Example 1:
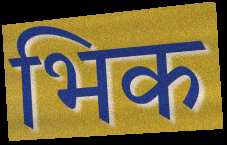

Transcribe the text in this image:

भिक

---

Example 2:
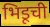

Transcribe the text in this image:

भिडूची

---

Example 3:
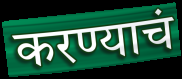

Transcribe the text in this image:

करण्याचं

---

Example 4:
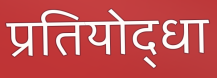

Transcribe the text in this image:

प्रतियोद्धा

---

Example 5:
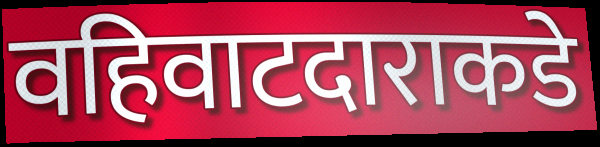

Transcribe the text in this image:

वहिवाटदाराकडे